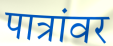
पात्रांवर